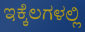
ಇಕ್ಕೆಲಗಳಲ್ಲಿ